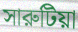
সারুটিয়া